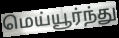
மெய்யூர்ந்து